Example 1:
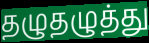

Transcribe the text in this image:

தழுதழுத்து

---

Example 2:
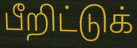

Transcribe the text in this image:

பீறிட்டுக்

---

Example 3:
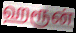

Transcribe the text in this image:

ஹரூன்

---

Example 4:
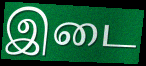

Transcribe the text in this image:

இடை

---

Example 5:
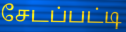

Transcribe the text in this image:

சேடப்பட்டி